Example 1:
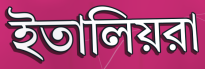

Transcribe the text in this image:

ইতালিয়রা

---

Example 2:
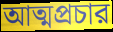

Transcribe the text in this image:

আত্মপ্রচার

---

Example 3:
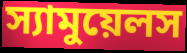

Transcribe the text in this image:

স্যামুয়েলস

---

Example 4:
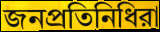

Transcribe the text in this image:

জনপ্রতিনিধিরা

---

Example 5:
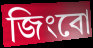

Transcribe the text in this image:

জিংবো